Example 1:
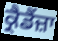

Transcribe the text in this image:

ਕ੍ਰੈਡੈਂਜ਼ਾ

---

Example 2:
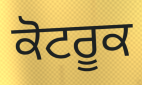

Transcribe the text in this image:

ਕੋਟਰੂਕ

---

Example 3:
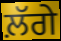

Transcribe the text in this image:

ਲ਼ੱਗੇ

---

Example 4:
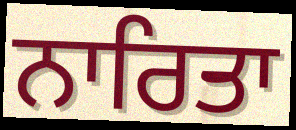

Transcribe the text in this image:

ਨਾਰਿਤਾ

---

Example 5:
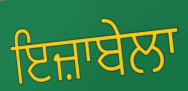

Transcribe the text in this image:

ਇਜ਼ਾਬੇਲਾ